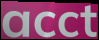
acct